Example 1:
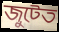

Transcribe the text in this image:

জুট্তে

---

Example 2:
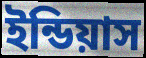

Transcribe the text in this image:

ইন্ডিয়াস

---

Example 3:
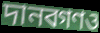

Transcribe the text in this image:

দানবগণও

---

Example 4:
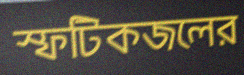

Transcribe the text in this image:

স্ফটিকজলের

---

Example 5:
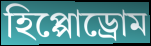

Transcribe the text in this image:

হিপ্পোড্রোম